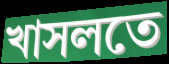
খাসলতে